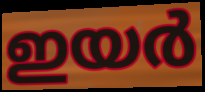
ഇയർ